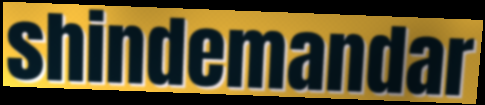
shindemandar